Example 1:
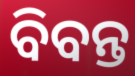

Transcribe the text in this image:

ବିବନ୍ତ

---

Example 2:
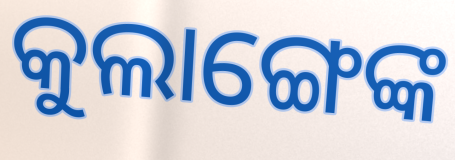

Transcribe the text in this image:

କୁଲାଙ୍ଗେଙ୍କ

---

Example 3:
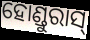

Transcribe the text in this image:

ହୋଣ୍ଡୁରାସ୍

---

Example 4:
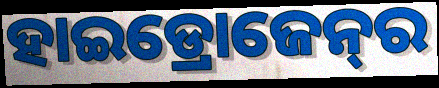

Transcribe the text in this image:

ହାଇଡ୍ରୋଜେନ୍‌ର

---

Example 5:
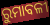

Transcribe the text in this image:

ରୁମାବଳୀ